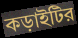
কড়াইটির